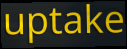
uptake